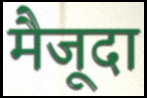
मैजूदा